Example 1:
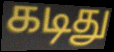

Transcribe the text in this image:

கடிது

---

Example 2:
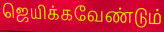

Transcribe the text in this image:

ஜெயிக்கவேண்டும்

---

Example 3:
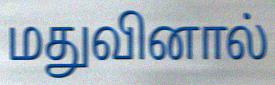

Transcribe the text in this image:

மதுவினால்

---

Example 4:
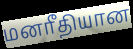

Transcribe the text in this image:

மனரீதியான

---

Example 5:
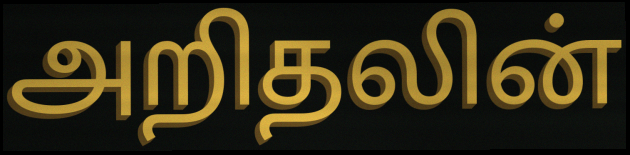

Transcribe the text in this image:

அறிதலின்